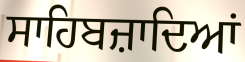
ਸਾਹਿਬਜ਼ਾਦਿਆਂ